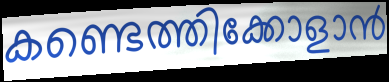
കണ്ടെത്തിക്കോളാൻ